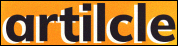
artilcle